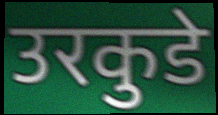
उरकुडे